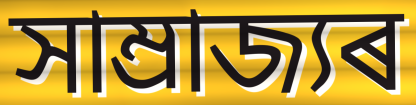
সাম্ৰাজ্যৰ